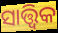
ସାତ୍ତ୍ବିକ